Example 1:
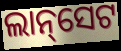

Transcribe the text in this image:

ଲାନ୍‌ସେଟ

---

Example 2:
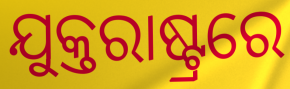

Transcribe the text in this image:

ଯୁକ୍ତରାଷ୍ଟ୍ରରେ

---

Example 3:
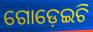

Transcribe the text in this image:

ଗୋଡ଼େଇଚି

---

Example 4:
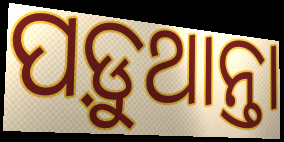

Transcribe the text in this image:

ପଡ଼ୁଥାନ୍ତା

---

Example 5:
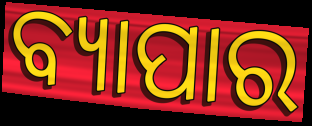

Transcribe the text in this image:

ବ୍ଯାପାର